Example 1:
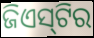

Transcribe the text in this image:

ଜିଏସ୍‌ଟିର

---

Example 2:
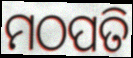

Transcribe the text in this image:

ମଠପତି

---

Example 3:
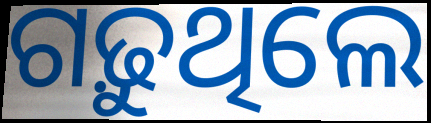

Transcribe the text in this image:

ଗଢ଼ୁଥିଲେ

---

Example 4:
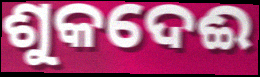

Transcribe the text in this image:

ଶୁକଦେଈ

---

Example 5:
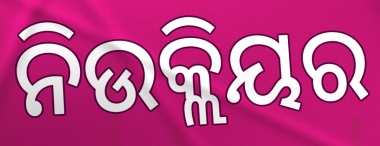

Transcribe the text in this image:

ନିଉକ୍ଲିୟର